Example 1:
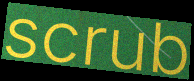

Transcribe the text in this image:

scrub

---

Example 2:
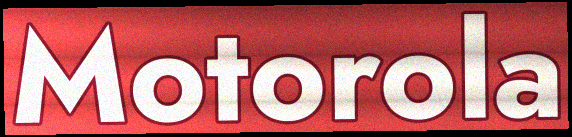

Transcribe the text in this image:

Motorola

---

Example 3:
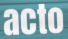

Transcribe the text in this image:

acto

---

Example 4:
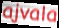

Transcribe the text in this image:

ajvala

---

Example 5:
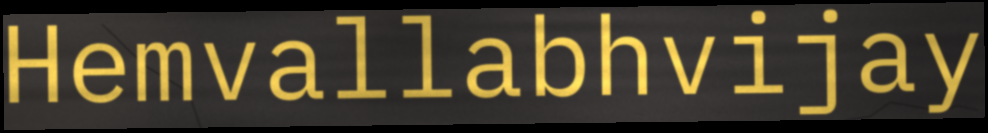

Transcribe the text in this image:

Hemvallabhvijay